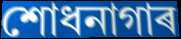
শোধনাগাৰ